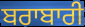
ਬਰਾਬਾਰੀ